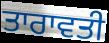
ਤਾਰਾਵਤੀ